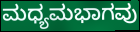
ಮಧ್ಯಮಭಾಗವು